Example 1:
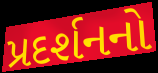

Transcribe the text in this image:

પ્રદર્શનનો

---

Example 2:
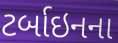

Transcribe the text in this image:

ટર્બાઇનના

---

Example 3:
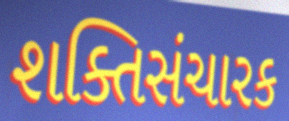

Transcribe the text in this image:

શક્તિસંચારક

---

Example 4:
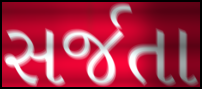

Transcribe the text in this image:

સર્જતા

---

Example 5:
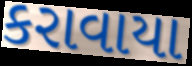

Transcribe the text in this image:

કરાવાયા